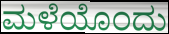
ಮಳೆಯೊಂದು